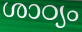
ശാഠ്യം